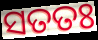
ସତତଃ